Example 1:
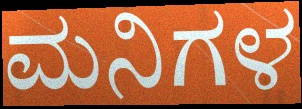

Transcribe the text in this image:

ಮನಿಗಳ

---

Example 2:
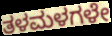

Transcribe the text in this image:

ತಳಮಳಗಳೇ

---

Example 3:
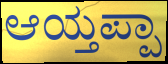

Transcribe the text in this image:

ಆಯ್ತಪ್ಪಾ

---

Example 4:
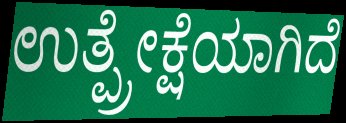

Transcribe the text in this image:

ಉತ್ಪ್ರೇಕ್ಷೆಯಾಗಿದೆ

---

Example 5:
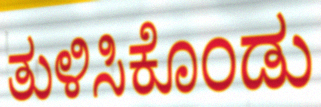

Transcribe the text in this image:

ತುಳಿಸಿಕೊಂಡು